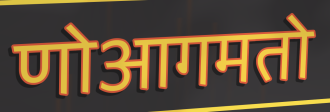
णोआगमतो